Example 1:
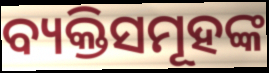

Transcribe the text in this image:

ବ୍ୟକ୍ତିସମୂହଙ୍କ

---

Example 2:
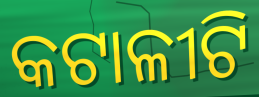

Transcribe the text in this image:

କଟାଳୀଟି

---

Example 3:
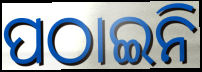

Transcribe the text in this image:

ପଠାଇନି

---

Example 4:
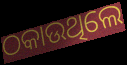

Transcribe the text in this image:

ଠକାଉଥିଲେ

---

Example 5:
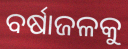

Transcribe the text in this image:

ବର୍ଷାଜଳକୁ